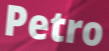
Petro